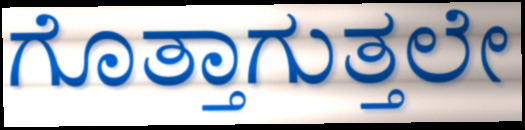
ಗೊತ್ತಾಗುತ್ತಲೇ